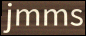
jmms